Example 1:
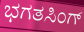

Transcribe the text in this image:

ಭಗತಸಿಂಗ್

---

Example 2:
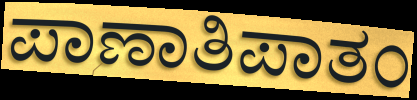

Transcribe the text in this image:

ಪಾಣಾತಿಪಾತಂ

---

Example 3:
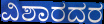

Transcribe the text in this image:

ವಿಶಾರದರ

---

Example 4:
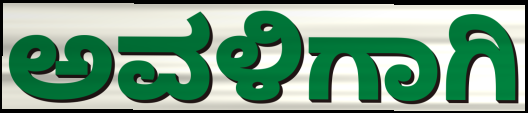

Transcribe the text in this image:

ಅವಳಿಗಾಗಿ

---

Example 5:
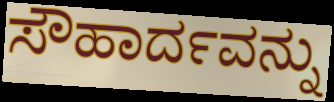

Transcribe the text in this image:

ಸೌಹಾರ್ದವನ್ನು